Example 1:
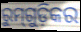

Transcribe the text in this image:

ରୁମ୍‌ଗୁଡ଼ିକର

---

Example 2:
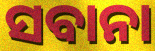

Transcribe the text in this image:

ସବାନା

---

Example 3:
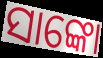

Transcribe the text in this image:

ସାଙ୍କୋ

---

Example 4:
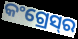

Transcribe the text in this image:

କଂଗ୍ରେସ୍‌ର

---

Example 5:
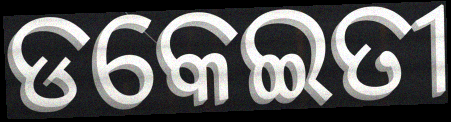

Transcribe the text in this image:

ଡକେଇତୀ